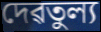
দেৱতুল্য